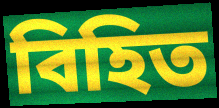
বিহিত